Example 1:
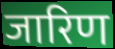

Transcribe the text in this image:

जारिण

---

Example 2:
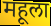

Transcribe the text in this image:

महूला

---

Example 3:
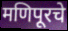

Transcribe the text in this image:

मणिपूरचे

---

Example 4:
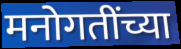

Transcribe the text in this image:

मनोगतींच्या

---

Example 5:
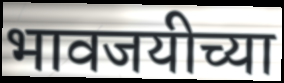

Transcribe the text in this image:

भावजयीच्या